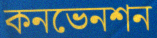
কনভেনশন